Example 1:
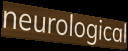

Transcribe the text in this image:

neurological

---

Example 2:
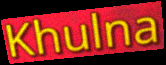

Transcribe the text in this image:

Khulna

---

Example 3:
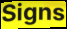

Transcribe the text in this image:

Signs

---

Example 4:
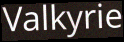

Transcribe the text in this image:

Valkyrie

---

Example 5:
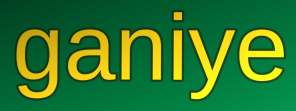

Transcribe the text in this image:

ganiye